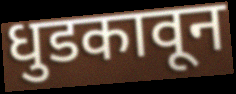
धुडकावून